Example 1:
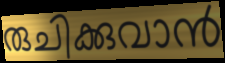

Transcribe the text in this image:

രുചിക്കുവാൻ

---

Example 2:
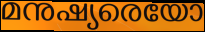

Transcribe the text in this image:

മനുഷ്യരെയോ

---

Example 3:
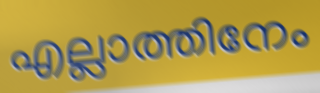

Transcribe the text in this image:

എല്ലാത്തിനേം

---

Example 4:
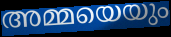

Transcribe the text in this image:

അമ്മയെയും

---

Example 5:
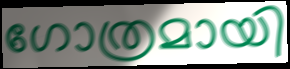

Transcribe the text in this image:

ഗോത്രമായി